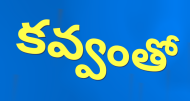
కవ్వంతో